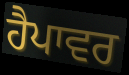
ਹੈਪਾਵਰ